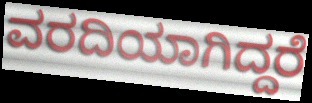
ವರದಿಯಾಗಿದ್ದರೆ